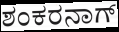
ಶಂಕರನಾಗ್